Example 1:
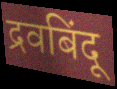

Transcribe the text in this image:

द्रवबिंदू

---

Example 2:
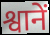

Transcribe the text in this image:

श्वानें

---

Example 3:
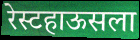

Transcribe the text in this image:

रेस्टहाऊसला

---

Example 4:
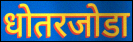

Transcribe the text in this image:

धोतरजोडा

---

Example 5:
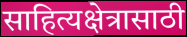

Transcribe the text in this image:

साहित्यक्षेत्रासाठी